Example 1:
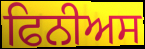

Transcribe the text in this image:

ਫਿਨੀਅਸ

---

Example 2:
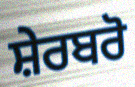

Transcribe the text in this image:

ਸ਼ੇਰਬਰੋ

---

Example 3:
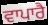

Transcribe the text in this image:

ਵਾਪਾਰੈ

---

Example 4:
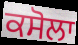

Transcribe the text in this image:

ਕਸੋਲਾ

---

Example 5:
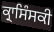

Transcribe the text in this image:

ਕ੍ਰਾਸਿੰਸਕੀ